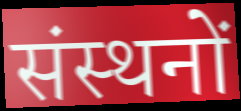
संस्थनों